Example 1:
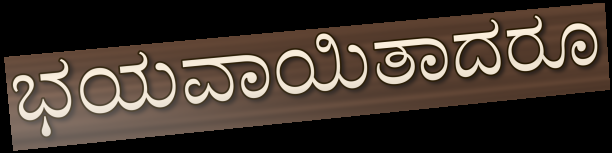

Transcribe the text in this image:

ಭಯವಾಯಿತಾದರೂ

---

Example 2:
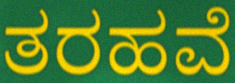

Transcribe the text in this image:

ತರಹವೆ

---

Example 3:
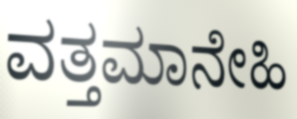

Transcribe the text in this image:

ವತ್ತಮಾನೇಹಿ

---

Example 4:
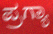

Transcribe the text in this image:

ಪ್ರಗ್ಯಾ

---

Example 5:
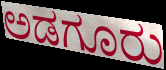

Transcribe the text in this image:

ಅಡಗೂರು